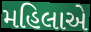
મહિલાએ